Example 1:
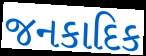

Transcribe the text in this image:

જનકાદિક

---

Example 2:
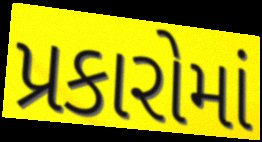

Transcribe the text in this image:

પ્રકારોમાં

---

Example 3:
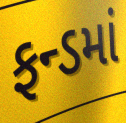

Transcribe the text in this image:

ફન્ડમાં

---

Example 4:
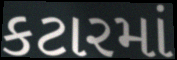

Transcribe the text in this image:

કટારમાં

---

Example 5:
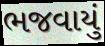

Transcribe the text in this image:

ભજવાયું